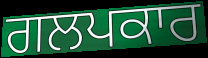
ਗਲਪਕਾਰ